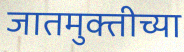
जातमुक्तीच्या